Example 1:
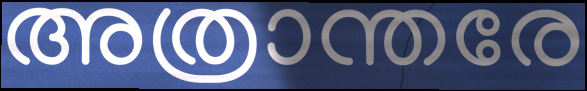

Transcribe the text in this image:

അത്രാന്തരേ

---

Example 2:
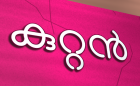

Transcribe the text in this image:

കുറ്റൻ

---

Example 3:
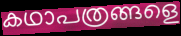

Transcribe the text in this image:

കഥാപത്രങ്ങളെ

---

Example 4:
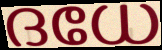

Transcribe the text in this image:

ദധേ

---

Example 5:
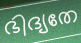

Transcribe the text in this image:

ഭിദ്യതേ